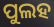
ପୁଲହ